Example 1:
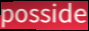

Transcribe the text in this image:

posside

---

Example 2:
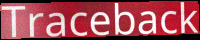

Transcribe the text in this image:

Traceback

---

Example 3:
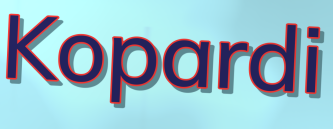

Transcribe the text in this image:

Kopardi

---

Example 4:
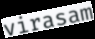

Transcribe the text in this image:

virasam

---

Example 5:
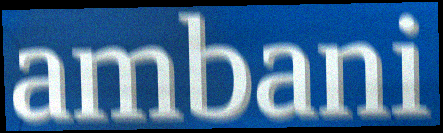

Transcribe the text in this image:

ambani